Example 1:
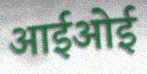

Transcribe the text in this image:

आईओई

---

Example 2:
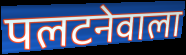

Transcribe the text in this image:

पलटनेवाला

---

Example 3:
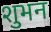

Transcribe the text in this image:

शुभन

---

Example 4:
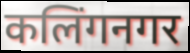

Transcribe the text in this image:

कलिंगनगर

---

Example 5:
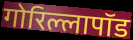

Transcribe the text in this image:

गोरिल्लापॉड